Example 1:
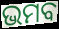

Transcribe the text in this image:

ଭମବ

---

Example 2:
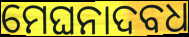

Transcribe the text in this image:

ମେଘନାଦବଧ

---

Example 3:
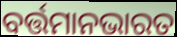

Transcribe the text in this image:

ବର୍ତ୍ତମାନଭାରତ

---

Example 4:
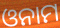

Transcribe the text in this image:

ଓନାମ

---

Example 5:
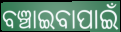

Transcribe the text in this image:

ବଞ୍ଚାଇବାପାଇଁ